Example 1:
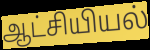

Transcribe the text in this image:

ஆட்சியியல்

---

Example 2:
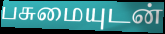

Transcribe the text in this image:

பசுமையுடன்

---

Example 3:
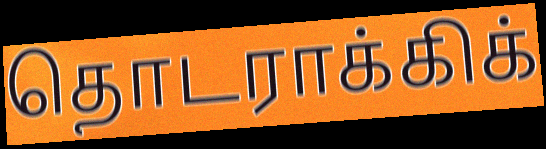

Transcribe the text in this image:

தொடராக்கிக்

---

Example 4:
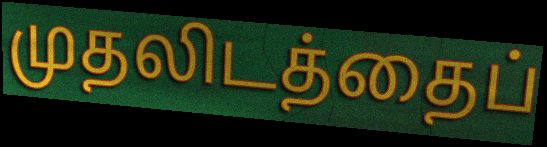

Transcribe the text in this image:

முதலிடத்தைப்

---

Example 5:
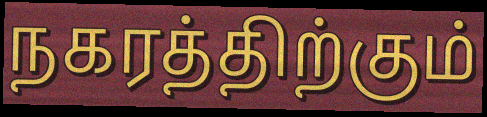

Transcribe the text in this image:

நகரத்திற்கும்